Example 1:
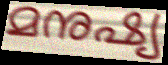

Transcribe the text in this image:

മനുഷ്യ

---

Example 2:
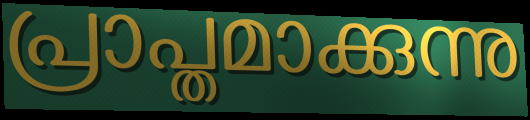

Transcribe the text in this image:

പ്രാപ്തമാക്കുന്നു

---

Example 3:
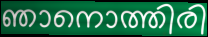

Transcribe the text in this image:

ഞാനൊത്തിരി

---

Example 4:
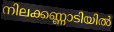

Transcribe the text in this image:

നിലക്കണ്ണാടിയിൽ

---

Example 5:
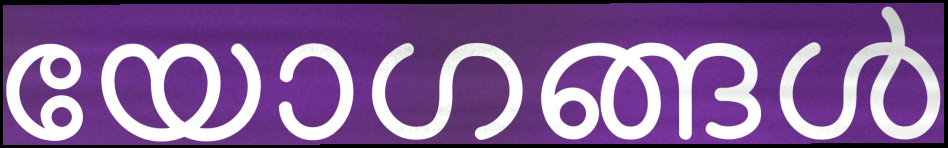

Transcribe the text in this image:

യോഗങ്ങൾ